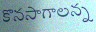
కొనసాగాలన్న